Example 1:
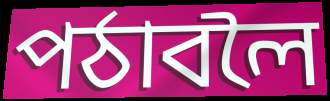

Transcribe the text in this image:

পঠাবলৈ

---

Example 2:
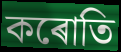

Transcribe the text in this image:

কৰোতি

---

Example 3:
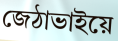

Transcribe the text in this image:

জেঠাভাইয়ে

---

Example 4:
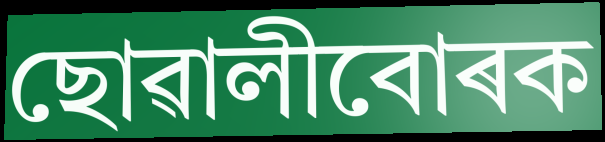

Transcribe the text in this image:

ছোৱালীবোৰক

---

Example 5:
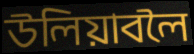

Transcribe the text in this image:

উলিয়াবলৈ